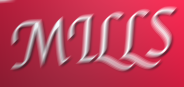
MILLS